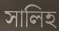
সালিহ